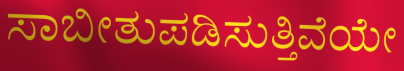
ಸಾಬೀತುಪಡಿಸುತ್ತಿವೆಯೇ